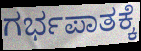
ಗರ್ಭಪಾತಕ್ಕೆ